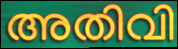
അതിവി